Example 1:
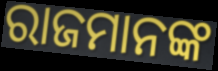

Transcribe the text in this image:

ରାଜମାନଙ୍କ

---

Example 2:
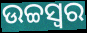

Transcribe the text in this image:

ଉଚ୍ଚସ୍ଵର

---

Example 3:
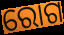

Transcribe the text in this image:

ରୋଗ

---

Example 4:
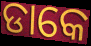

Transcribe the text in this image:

ଡାକେ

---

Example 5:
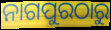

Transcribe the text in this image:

ନାଗପୁରଠାରୁ